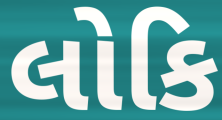
લોકિ